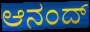
ಆನಂದ್